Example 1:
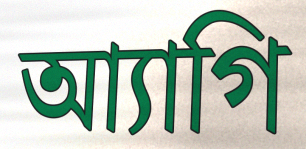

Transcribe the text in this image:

আ্যাগি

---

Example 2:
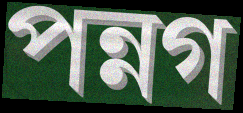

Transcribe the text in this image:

পন্নগ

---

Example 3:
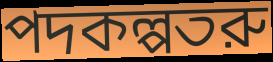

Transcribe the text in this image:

পদকল্পতরু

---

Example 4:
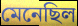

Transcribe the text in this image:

মেনেছিল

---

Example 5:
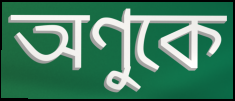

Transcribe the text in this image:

অণুকে